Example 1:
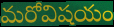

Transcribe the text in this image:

మరోవిషయం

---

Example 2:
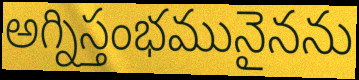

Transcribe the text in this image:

అగ్నిస్తంభమునైనను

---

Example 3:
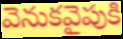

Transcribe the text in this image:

వెనుకవైపుకి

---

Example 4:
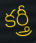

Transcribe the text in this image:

కర్త్రీ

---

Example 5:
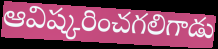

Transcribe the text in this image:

ఆవిష్కరించగలిగాడు